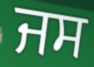
ਜਸ